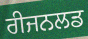
ਰੀਜਨਲਡ